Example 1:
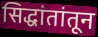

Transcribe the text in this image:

सिद्धांतांतून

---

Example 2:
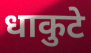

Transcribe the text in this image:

धाकुटे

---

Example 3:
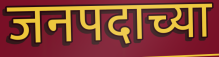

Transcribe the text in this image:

जनपदाच्या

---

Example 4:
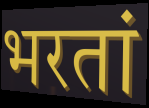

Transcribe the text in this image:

भरतां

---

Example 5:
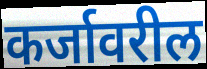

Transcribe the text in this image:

कर्जावरील